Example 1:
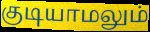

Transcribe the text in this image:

குடியாமலும்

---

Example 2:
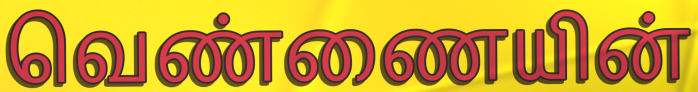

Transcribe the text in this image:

வெண்ணையின்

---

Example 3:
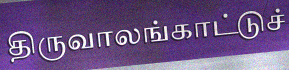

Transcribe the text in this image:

திருவாலங்காட்டுச்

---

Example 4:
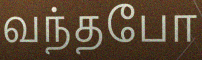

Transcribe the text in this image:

வந்தபோ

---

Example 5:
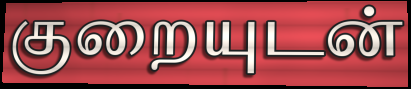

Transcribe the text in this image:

குறையுடன்